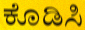
ಕೊಡಿಸಿ